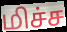
மிச்ச